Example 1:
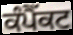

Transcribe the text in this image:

ਕੰਪੈੱਕਟ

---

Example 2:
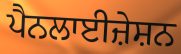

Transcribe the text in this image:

ਪੈਨਲਾਈਜ਼ੇਸ਼ਨ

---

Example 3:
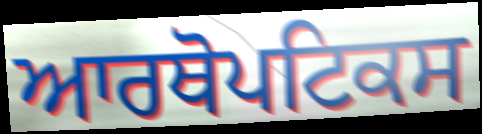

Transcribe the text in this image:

ਆਰਥੋਪਟਿਕਸ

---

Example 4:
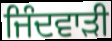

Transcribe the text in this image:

ਜਿੰਦਵਾੜੀ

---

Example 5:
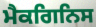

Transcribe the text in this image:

ਮੈਕਗਿਨਿਸ